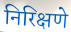
निरिक्षणे